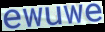
ewuwe